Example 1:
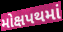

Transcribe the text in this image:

મોક્ષપથમાં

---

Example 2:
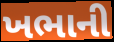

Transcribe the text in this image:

ખભાની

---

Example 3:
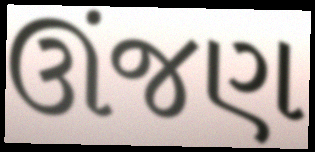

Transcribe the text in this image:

ઊંજણ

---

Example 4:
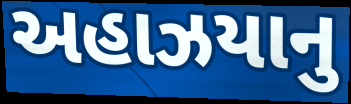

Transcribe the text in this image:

અહાઝયાનુ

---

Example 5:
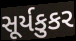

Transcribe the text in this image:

સૂર્યકુકર